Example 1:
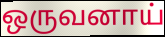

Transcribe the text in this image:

ஒருவனாய்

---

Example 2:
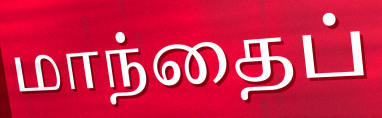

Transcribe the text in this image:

மாந்தைப்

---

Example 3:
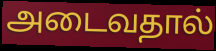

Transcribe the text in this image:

அடைவதால்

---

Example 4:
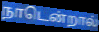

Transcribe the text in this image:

நாடென்றால்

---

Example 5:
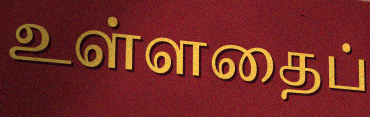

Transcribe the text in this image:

உள்ளதைப்